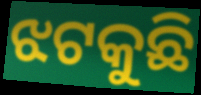
ଝଟକୁଛି